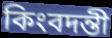
কিংবদন্তী